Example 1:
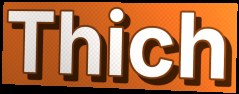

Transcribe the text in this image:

Thich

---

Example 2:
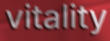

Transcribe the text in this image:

vitality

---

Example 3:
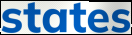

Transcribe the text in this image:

states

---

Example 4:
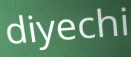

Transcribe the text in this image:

diyechi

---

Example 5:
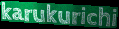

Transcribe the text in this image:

karukurichi